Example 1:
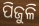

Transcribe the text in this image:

ପିଜୁଳି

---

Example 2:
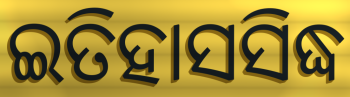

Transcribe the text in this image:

ଇତିହାସସିଦ୍ଧ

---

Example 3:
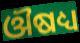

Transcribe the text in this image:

ଔଷଧ୍ୟ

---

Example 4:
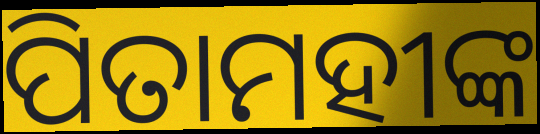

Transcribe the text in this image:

ପିତାମହୀଙ୍କ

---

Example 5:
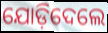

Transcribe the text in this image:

ଯୋଡ଼ିଦେଲେ